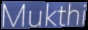
Mukthi